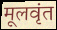
मूलवृंत